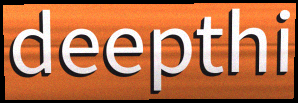
deepthi